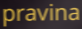
pravina